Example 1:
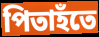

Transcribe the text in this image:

পিতাহঁতে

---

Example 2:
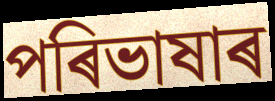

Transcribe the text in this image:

পৰিভাষাৰ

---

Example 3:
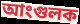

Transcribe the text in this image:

আংগুলক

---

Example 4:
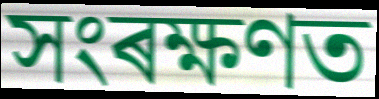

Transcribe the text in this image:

সংৰক্ষণত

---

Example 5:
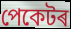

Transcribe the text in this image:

পেকেটৰ